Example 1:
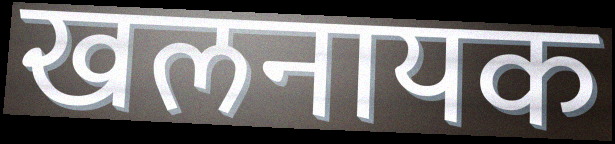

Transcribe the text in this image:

खलनायक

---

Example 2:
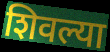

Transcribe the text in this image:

शिवल्या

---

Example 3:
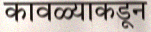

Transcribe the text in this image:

कावळ्याकडून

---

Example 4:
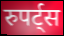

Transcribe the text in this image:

रुपर्ट्स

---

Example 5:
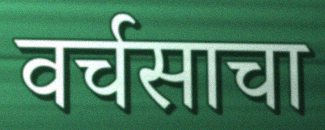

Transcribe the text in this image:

वर्चसाचा